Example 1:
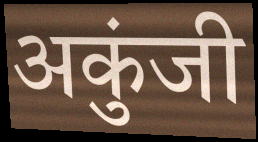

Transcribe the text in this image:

अकुंजी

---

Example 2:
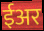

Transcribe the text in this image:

ईअर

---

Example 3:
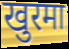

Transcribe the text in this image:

खुरमा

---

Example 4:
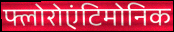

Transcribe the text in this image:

फ्लोरोएंटिमोनिक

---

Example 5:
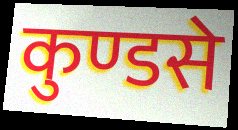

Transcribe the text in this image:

कुण्डसे